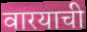
वारयाची